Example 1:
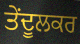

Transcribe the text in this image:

ਤੇਂਦੂਲਕਰ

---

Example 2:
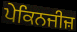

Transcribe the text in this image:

ਪੇਕਿਨਜੀਜ਼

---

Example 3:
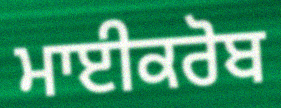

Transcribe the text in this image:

ਮਾਈਕਰੋਬ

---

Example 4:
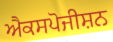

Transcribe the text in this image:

ਐਕਸਪੋਜੀਸ਼ਨ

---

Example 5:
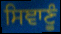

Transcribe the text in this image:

ਸਿਞਾਣੂੰ